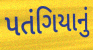
પતંગિયાનું